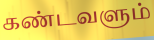
கண்டவளும்